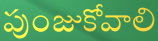
పుంజుకోవాలి